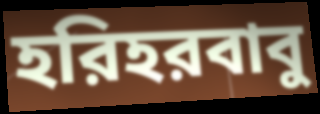
হরিহরবাবু